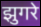
झुगरे